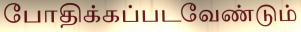
போதிக்கப்படவேண்டும்